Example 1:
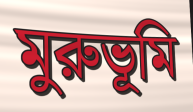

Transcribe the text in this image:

মুরুভূমি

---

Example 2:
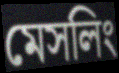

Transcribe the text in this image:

মেসলিং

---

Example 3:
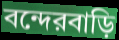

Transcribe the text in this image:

বন্দেরবাড়ি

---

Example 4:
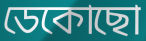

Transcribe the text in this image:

ডেকোছো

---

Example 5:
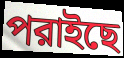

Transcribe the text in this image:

পরাইছে